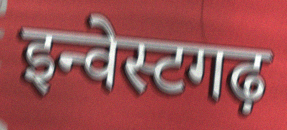
इन्वेस्टगढ़